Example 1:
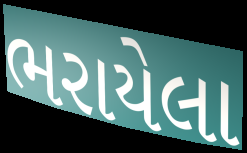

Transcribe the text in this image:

ભરાયેલા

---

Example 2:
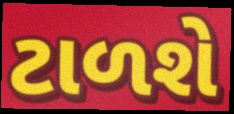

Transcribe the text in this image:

ટાળશે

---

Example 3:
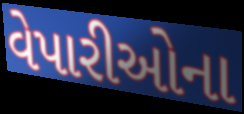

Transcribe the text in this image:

વેપારીઓના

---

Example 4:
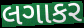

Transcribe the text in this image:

લગાકર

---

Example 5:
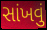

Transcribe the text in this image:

સાંખવું